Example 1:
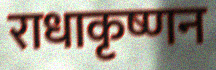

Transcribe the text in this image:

राधाकृष्णन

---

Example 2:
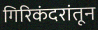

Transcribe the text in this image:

गिरिकंदरांतून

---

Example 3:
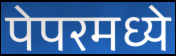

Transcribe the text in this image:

पेपरमध्ये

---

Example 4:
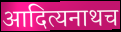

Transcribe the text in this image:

आदित्यनाथच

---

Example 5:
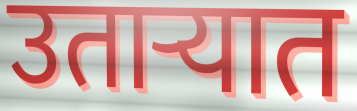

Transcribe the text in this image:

उताऱ्यात